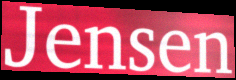
Jensen